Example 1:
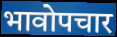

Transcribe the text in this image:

भावोपचार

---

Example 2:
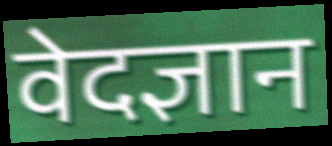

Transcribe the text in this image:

वेदज्ञान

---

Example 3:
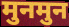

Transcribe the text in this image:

मुनमुन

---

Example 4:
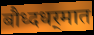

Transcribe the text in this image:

बौध्दधर्मात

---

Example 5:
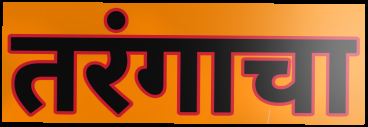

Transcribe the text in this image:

तरंगाचा